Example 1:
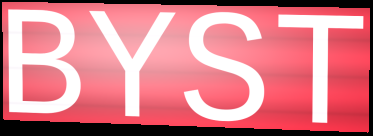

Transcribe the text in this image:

BYST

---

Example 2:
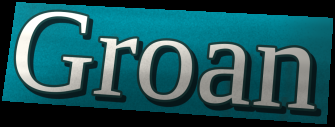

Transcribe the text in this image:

Groan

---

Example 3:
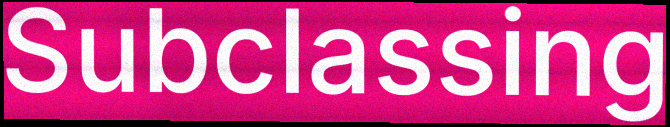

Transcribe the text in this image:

Subclassing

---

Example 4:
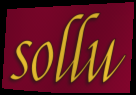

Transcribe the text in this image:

sollu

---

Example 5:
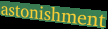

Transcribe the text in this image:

astonishment